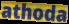
athoda